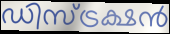
ഡിസ്ട്രക്ഷൻ